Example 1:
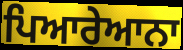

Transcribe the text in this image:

ਪਿਆਰੇਆਨਾ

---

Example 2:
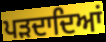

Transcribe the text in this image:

ਪੜਦਾਦਿਆਂ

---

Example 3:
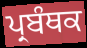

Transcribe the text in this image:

ਪ੍ਰਬੰਥਕ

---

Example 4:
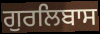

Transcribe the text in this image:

ਗੁਰਲਿਬਾਸ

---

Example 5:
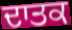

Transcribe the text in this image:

ਦਾਤਕ